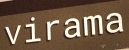
virama